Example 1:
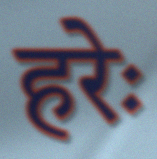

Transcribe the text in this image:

हरेः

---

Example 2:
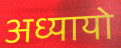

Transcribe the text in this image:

अध्यायो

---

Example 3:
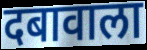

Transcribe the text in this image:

दबावाला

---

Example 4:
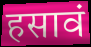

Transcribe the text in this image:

हसावं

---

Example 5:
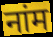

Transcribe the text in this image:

नांम